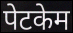
पेटकेम